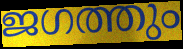
ജഗത്തും